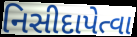
નિસીદાપેત્વા